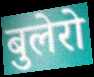
बुलेरो